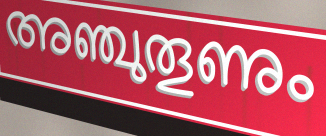
അഞ്ചുതൂണും